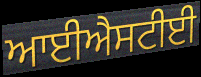
ਆਈਐਸਟੀਈ